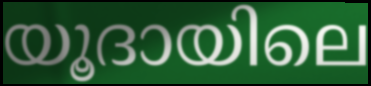
യൂദായിലെ